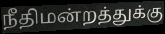
நீதிமன்றத்துக்கு